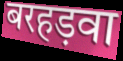
बरहड़वा